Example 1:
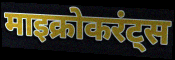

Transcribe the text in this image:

माइक्रोकरंट्स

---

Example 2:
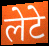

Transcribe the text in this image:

लेटे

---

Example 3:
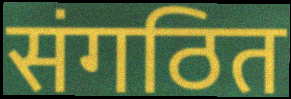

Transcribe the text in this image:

संगठित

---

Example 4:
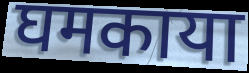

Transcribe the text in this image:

घमकाया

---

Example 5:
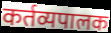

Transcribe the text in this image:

कर्तव्यपालक